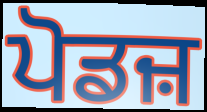
ਪੋਡਜ਼